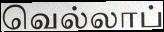
வெல்லாப்